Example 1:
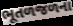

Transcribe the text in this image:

ભૂતળજળના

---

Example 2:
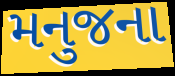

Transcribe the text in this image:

મનુજના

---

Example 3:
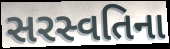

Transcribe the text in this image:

સરસ્વતિના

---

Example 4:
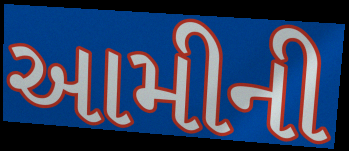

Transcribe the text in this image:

આમીની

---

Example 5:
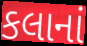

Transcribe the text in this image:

કલાનાં